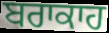
ਬਰਾਕਾਹ